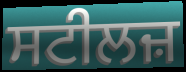
ਸਟੀਲਜ਼